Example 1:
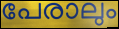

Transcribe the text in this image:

പേരാലും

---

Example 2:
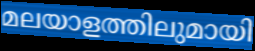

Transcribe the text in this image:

മലയാളത്തിലുമായി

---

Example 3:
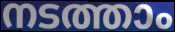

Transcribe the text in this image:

നടത്താം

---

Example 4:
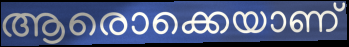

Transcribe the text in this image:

ആരൊക്കെയാണ്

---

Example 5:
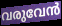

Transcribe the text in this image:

വരുവേൻ